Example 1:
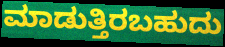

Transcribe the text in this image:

ಮಾಡುತ್ತಿರಬಹುದು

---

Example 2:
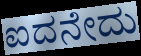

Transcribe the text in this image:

ಐದನೇದು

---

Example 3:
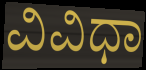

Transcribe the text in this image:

ವಿವಿಧಾ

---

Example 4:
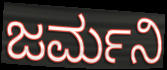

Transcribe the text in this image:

ಜರ್ಮನಿ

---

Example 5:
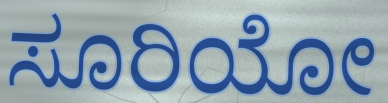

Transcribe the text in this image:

ಸೂರಿಯೋ